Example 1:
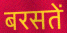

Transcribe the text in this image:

बरसतें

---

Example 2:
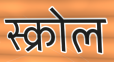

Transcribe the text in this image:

स्क्रोल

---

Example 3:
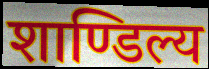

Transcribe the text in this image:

शाण्डिल्य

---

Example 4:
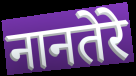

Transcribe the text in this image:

नानतेरे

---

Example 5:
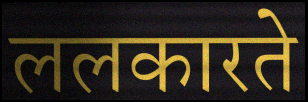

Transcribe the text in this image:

ललकारते